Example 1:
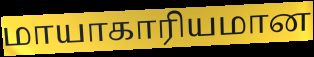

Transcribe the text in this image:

மாயாகாரியமான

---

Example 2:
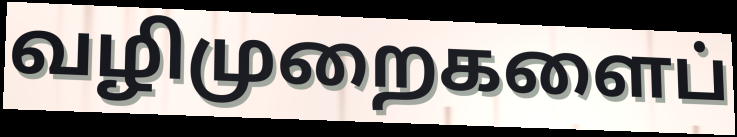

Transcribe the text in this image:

வழிமுறைகளைப்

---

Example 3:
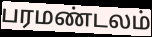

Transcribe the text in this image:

பரமண்டலம்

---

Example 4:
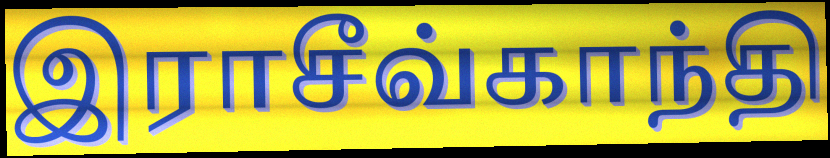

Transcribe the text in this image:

இராசீவ்காந்தி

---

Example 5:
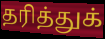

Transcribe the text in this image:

தரித்துக்